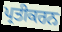
ਪ੍ਰਤੀਕਰਨ